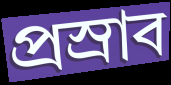
প্রস্রাব